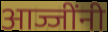
आज्जींनी